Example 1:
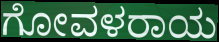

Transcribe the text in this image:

ಗೋವಳರಾಯ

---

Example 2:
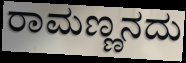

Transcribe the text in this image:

ರಾಮಣ್ಣನದು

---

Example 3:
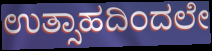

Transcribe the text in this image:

ಉತ್ಸಾಹದಿಂದಲೇ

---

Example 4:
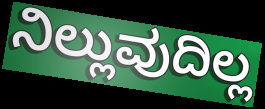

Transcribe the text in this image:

ನಿಲ್ಲುವುದಿಲ್ಲ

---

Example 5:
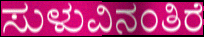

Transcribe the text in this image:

ಸುಳುವಿನಂತಿರೆ